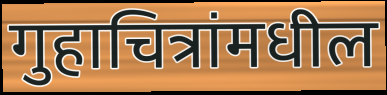
गुहाचित्रांमधील